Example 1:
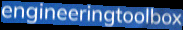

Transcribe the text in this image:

engineeringtoolbox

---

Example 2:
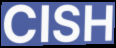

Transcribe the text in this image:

CISH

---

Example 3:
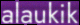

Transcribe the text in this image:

alaukik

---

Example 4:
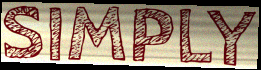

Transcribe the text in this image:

SIMPLY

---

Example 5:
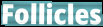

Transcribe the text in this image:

Follicles